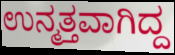
ಉನ್ಮತ್ತವಾಗಿದ್ದ